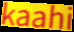
kaahi